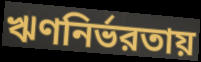
ঋণনির্ভরতায়